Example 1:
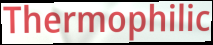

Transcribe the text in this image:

Thermophilic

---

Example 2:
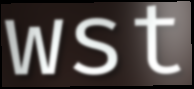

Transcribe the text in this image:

wst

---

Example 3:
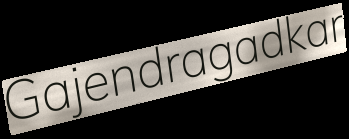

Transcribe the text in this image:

Gajendragadkar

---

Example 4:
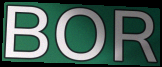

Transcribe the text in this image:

BOR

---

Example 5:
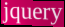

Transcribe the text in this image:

jquery